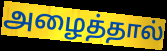
அழைத்தால்